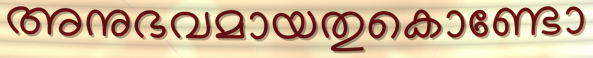
അനുഭവമായതുകൊണ്ടോ